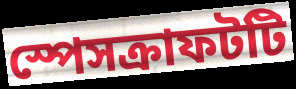
স্পেসক্রাফটটি